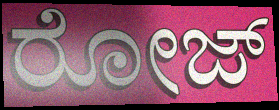
ರೋಜ್